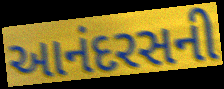
આનંદરસની